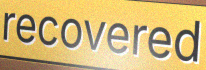
recovered